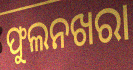
ଫୁଲନଖରା